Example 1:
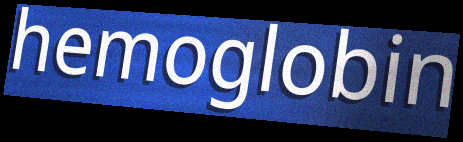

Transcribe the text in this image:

hemoglobin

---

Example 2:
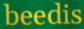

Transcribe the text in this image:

beedis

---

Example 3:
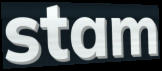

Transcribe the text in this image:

stam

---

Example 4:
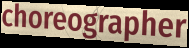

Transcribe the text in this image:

choreographer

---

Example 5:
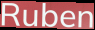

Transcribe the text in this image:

Ruben